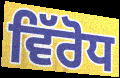
ਵਿੱਰੋਧ